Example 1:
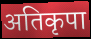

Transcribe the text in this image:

अतिकृपा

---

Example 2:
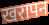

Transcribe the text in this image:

खरापन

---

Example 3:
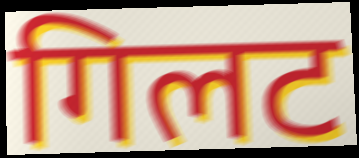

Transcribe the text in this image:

गिलट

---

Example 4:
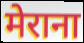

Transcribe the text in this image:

मेराना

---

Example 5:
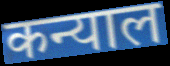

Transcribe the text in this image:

कन्याल